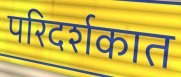
परिदर्शकात